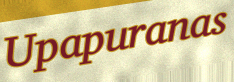
Upapuranas